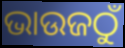
ଭାଉଜଠୁଁ